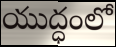
యుద్ధంలో